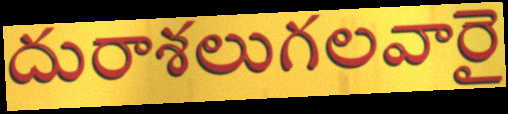
దురాశలుగలవారై